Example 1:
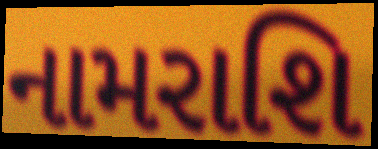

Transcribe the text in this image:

નામરાશિ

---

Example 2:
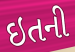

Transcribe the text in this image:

ઇતની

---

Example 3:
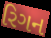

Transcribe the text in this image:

રિગન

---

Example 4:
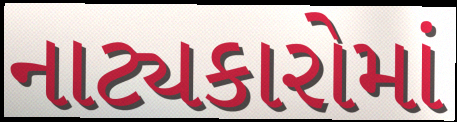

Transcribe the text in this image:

નાટ્યકારોમાં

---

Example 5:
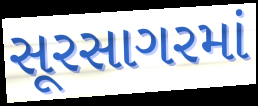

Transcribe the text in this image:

સૂરસાગરમાં